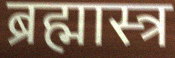
ब्रह्मास्त्र